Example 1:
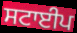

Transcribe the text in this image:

ਸਟਾਈਪ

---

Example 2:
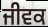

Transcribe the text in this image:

ਜੀਵਕ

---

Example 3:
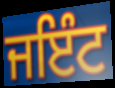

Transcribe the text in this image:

ਜਇੰਟ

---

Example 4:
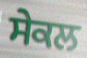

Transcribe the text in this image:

ਸੇਕਲ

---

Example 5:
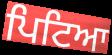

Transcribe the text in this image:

ਪਿਟਿਆ